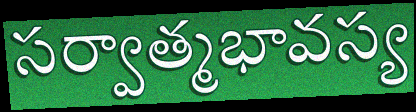
సర్వాత్మభావస్య